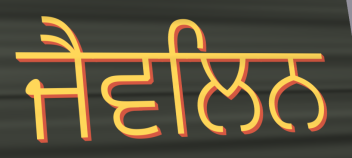
ਜੈਵਲਿਨ